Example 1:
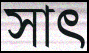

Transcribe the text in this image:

সাৎ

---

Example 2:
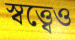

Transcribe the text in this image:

স্বত্ত্বেও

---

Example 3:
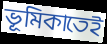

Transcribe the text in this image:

ভূমিকাতেই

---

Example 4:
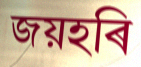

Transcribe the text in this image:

জয়হৰি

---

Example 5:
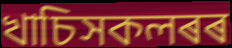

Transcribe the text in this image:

খাচিসকলৰৰ